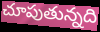
చూపుతున్నది